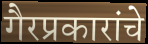
गैरप्रकारांचे